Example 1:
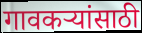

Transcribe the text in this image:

गावकऱ्यांसाठी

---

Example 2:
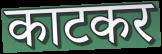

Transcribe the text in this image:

काटकर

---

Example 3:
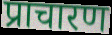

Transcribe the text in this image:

प्राचारण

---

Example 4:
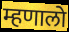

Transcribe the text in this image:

म्हणालो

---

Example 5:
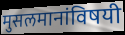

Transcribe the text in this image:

मुसलमानांविषयी